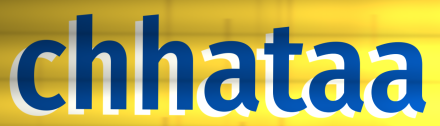
chhataa